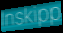
Inskipp